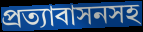
প্রত্যাবাসনসহ